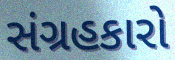
સંગ્રહકારો